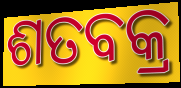
ଶତବକ୍ର